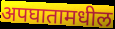
अपघातामधील